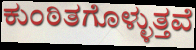
ಕುಂಠಿತಗೊಳ್ಳುತ್ತವೆ